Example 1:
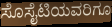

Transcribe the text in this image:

ಸೊಸೈಟಿಯವರಿಗೂ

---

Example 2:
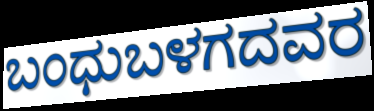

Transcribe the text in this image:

ಬಂಧುಬಳಗದವರ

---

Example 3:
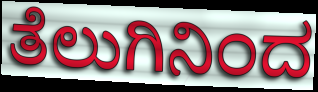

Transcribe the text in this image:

ತೆಲುಗಿನಿಂದ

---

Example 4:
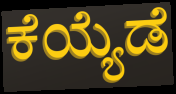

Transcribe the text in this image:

ಕೆಯ್ಯೆಡೆ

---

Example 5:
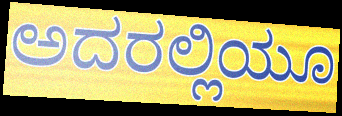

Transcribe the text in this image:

ಅದರಲ್ಲಿಯೂ